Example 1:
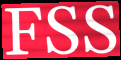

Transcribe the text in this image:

FSS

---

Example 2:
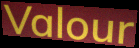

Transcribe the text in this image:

Valour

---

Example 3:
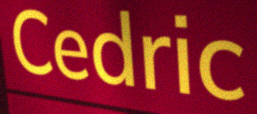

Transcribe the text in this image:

Cedric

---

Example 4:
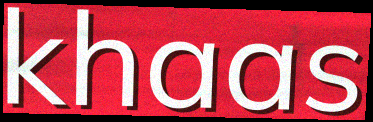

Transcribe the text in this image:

khaas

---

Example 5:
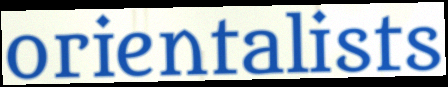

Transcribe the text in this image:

orientalists